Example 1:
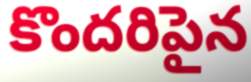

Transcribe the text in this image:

కొందరిపైన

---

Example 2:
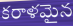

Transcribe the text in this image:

కరాళమైన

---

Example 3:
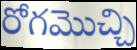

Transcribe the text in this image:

రోగమొచ్చి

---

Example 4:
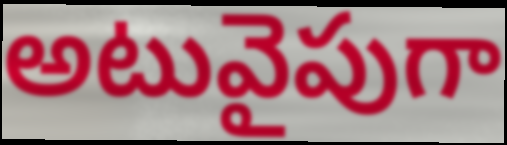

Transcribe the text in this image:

అటువైపుగా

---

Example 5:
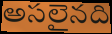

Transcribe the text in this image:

అసలైనది